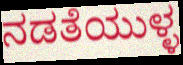
ನಡತೆಯುಳ್ಳ